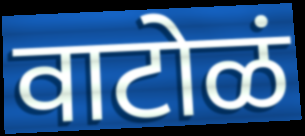
वाटोळं